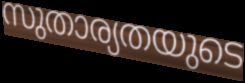
സുതാര്യതയുടെ